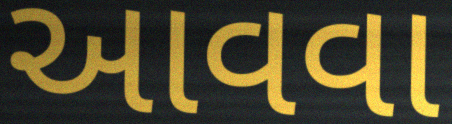
આવવા